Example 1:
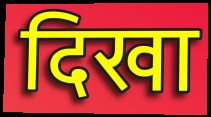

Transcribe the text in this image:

दिखा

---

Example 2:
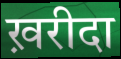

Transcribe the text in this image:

ख़रीदा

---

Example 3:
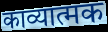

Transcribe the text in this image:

काव्यात्मक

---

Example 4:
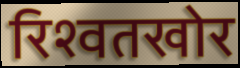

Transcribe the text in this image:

रिश्वतखोर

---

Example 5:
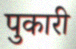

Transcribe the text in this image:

पुकारी